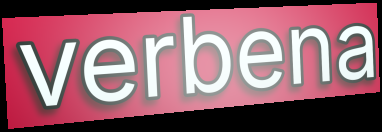
verbena